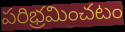
పరిభ్రమించటం